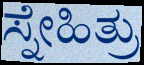
ಸ್ನೇಹಿತ್ರು